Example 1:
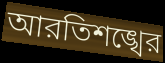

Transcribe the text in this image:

আরতিশঙ্খের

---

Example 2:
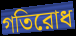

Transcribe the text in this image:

গতিরোধ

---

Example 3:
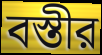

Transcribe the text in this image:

বস্তীর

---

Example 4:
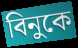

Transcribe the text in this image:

বিনুকে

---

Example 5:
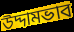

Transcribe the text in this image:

উদ্দামভাব